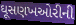
ઘૂસણખઓરીની